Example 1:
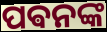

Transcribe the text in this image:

ପଵନଙ୍କ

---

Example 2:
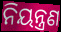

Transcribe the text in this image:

ନିୟନ୍ତ୍ରଣ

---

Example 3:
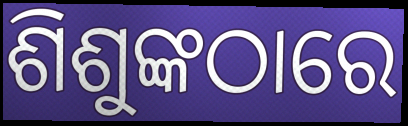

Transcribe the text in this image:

ଶିଶୁଙ୍କଠାରେ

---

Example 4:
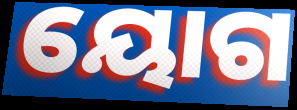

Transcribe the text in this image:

ୟୋଗ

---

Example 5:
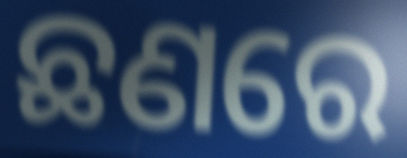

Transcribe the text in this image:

ଛଣରେ